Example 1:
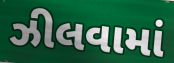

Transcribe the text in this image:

ઝીલવામાં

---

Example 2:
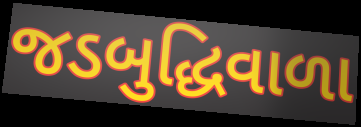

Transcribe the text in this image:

જડબુદ્ધિવાળા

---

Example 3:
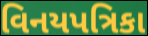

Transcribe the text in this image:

વિનયપત્રિકા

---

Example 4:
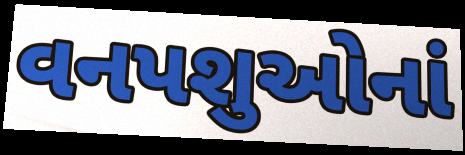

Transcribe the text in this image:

વનપશુઓનાં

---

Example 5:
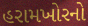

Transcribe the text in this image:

હરામખોરનો